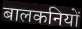
बालकनियों